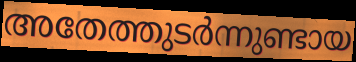
അതേത്തുടർന്നുണ്ടായ